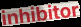
inhibitor